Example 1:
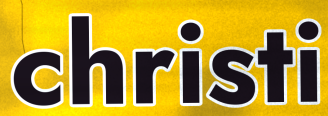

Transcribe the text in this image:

christi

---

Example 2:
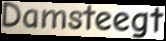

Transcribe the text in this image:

Damsteegt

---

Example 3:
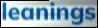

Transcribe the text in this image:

leanings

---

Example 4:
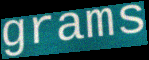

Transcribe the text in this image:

grams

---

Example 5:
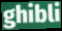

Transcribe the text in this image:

ghibli